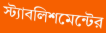
স্ট্যাবলিশমেন্টের